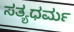
ಸತ್ಯಧರ್ಮ